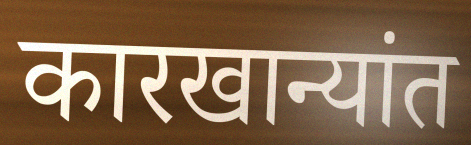
कारखान्यांत